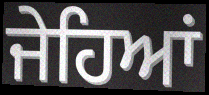
ਜੇਹਿਆਂ